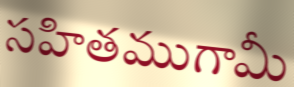
సహితముగామీ